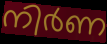
നിർണ